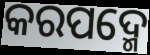
କରପଦ୍ମେ